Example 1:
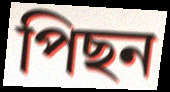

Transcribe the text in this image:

পিছন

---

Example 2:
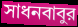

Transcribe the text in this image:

সাধনবাবুর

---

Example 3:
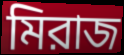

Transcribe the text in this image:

মিরাজ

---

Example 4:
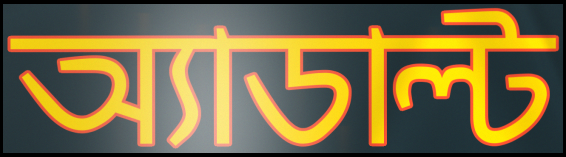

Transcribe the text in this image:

অ্যাডাল্ট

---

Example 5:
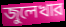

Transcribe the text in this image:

জুলেখার